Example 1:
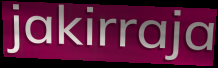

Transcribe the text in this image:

jakirraja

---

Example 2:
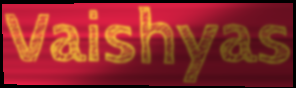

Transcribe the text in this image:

Vaishyas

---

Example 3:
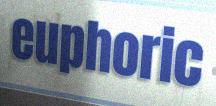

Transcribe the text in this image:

euphoric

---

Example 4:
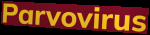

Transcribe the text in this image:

Parvovirus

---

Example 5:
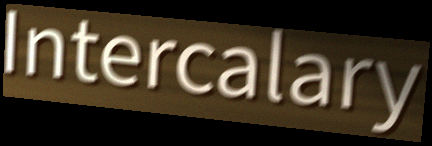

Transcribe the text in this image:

Intercalary